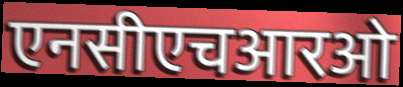
एनसीएचआरओ